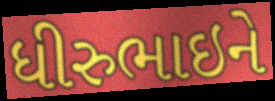
ધીરુભાઇને